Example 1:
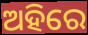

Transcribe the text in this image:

ଅହିରେ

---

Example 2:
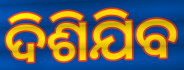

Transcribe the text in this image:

ଦିଶିଯିବ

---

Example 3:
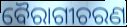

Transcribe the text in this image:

ବୈରାଗୀଚରଣ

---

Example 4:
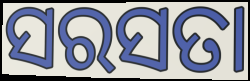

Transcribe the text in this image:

ସରସତା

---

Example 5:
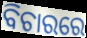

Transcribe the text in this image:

ବିଚାରରେ